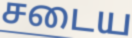
சடைய